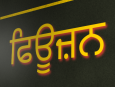
ਫਿਊਜ਼ਨ